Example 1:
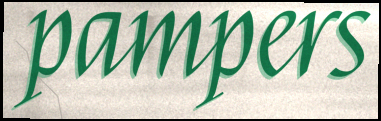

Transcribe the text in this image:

pampers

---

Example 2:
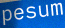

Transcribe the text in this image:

pesum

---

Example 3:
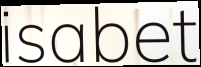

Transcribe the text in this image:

isabet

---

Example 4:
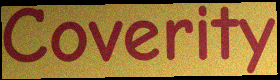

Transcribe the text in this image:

Coverity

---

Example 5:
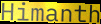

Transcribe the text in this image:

Himanth